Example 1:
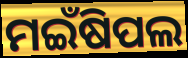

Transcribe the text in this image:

ମଇଁଷିପଲ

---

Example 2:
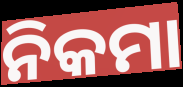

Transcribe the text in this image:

ନିକମା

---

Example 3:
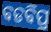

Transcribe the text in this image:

ବଡବିପ୍ର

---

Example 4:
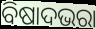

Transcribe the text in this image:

ବିଷାଦଭରା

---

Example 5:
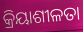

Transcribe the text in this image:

କ୍ରିୟାଶୀଳତା